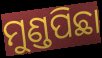
ମୁଣ୍ଡପିଛା